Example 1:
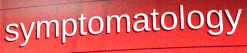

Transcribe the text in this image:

symptomatology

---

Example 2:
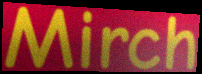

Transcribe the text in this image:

Mirch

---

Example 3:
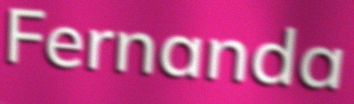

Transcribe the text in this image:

Fernanda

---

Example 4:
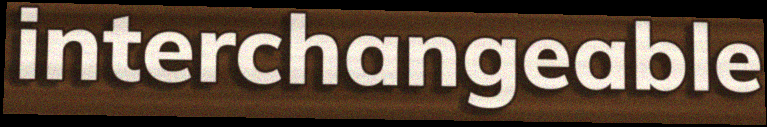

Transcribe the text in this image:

interchangeable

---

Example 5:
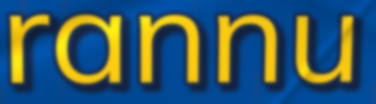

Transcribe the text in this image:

rannu